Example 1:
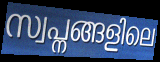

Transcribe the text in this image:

സ്വപ്നങ്ങളിലെ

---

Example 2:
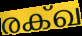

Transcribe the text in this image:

രക്ഖ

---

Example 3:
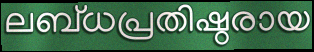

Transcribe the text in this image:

ലബ്ധപ്രതിഷ്ഠരായ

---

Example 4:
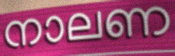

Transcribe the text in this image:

നാലണ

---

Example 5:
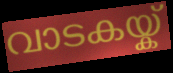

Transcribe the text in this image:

വാടകയ്ക്